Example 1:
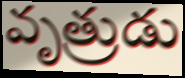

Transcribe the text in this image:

వృత్రుడు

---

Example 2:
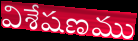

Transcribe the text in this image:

విశేషణము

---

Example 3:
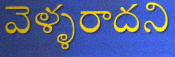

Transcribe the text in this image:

వెళ్ళరాదని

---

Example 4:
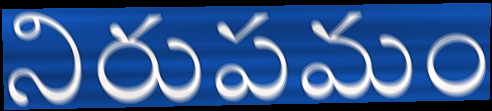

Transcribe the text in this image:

నిరుపమం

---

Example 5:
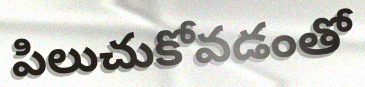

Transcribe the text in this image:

పిలుచుకోవడంతో